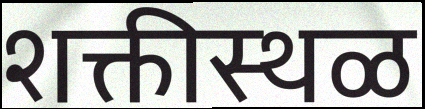
शक्तीस्थळ